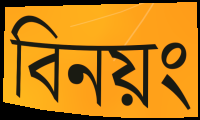
বিনয়ং